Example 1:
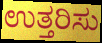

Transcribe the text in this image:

ಉತ್ತರಿಸು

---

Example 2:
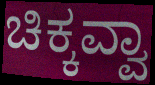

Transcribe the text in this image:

ಚಿಕ್ಕವ್ವಾ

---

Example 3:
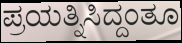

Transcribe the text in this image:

ಪ್ರಯತ್ನಿಸಿದ್ದಂತೂ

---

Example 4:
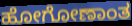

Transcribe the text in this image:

ಹೋಗೋಣಾಂತ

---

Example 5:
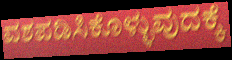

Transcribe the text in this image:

ವಶಪಡಿಸಿಕೊಳ್ಳುವುದಕ್ಕೆ